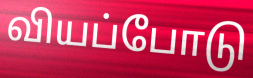
வியப்போடு